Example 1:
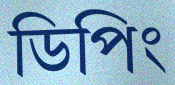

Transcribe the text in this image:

ডিপিং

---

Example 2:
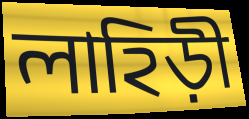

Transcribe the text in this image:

লাহিড়ী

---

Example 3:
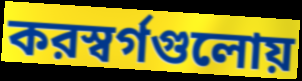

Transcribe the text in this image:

করস্বর্গগুলোয়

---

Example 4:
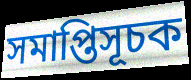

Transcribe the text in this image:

সমাপ্তিসূচক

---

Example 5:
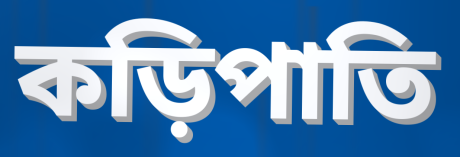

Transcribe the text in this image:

কড়িপাতি